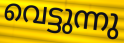
വെട്ടുന്നു